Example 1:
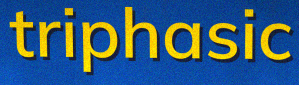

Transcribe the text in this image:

triphasic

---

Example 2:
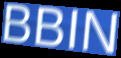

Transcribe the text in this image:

BBIN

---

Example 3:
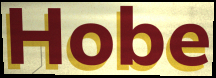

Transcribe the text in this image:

Hobe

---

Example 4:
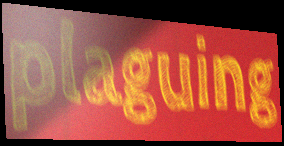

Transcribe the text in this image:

plaguing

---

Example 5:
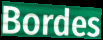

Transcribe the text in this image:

Bordes